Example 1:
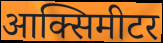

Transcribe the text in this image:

आक्सिमीटर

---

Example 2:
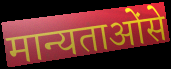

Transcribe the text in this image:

मान्यताओंसे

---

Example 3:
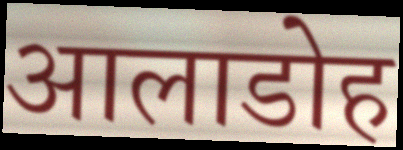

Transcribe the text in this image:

आलाडोह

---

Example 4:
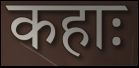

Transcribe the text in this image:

कहाः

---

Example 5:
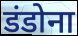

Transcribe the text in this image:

डंडोना